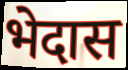
भेदास